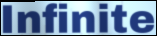
Infinite